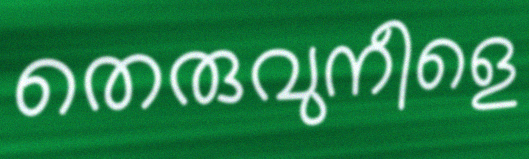
തെരുവുനീളെ